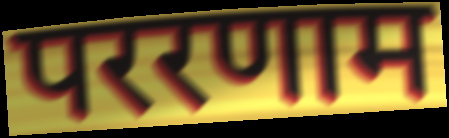
पररणाम